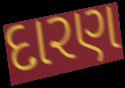
દારણ